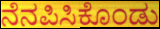
ನೆನಪಿಸಿಕೊಂಡು